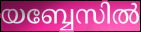
യബ്ബേസിൽ